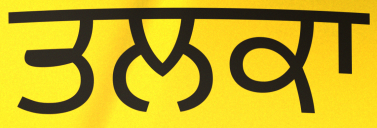
ਤਲਕਾ